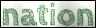
nation